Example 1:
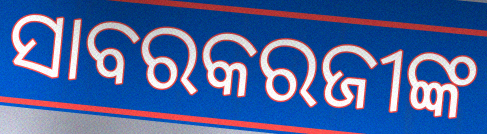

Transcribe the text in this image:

ସାବରକରଜୀଙ୍କ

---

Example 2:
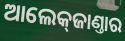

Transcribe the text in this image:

ଆଲେକ୍‌ଜାଣ୍ତାର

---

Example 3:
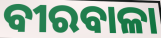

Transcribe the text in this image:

ବୀରବାଳା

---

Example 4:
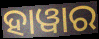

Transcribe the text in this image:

ହାୱାର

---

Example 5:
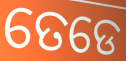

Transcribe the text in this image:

ତେଡେ